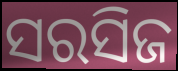
ସରସିଜ